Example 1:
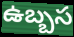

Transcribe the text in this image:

ఉబ్బస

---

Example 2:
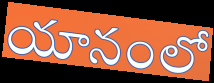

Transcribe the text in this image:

యానంలో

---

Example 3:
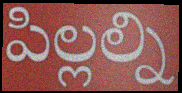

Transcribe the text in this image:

పిల్లల్ని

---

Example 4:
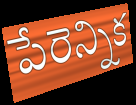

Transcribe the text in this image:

పేరెన్నిక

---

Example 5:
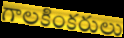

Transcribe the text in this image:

గాలకింకరులు